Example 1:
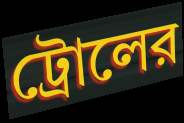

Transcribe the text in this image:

ট্রোলের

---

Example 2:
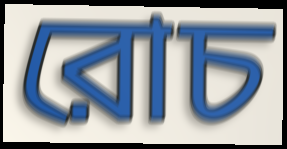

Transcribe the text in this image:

রোচ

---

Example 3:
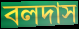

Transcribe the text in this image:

বলদাস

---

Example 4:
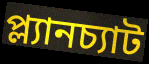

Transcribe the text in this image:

প্ল্যানচ্যাট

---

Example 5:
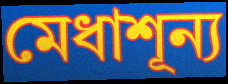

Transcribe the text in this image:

মেধাশূন্য